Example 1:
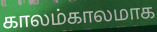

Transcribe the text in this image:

காலம்காலமாக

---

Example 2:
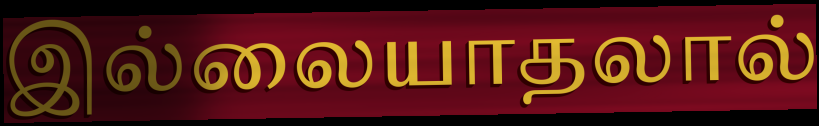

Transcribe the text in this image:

இல்லையாதலால்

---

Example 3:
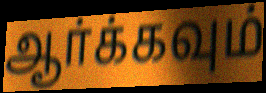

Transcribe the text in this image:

ஆர்க்கவும்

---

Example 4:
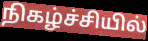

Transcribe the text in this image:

நிகழ்ச்சியில்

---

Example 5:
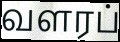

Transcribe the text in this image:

வளரப்